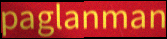
paglanman